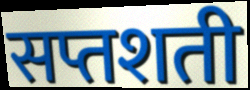
सप्तशती